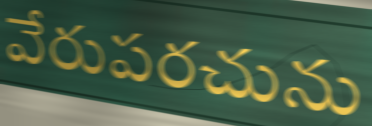
వేరుపరచును